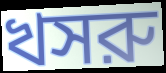
খসরু